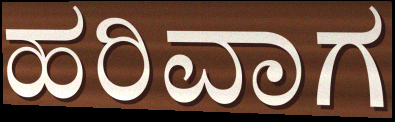
ಹರಿವಾಗ